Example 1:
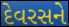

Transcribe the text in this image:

દેવરસને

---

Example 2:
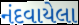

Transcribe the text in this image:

નંદવાયેલા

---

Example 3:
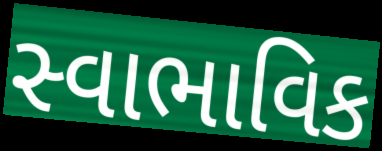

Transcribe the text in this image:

સ્વાભાવિક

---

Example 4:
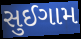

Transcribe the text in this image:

સુઈગામ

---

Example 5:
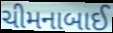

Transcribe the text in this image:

ચીમનાબાઈ